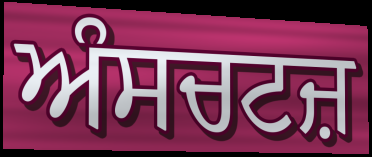
ਅੰਸਚਟਜ਼